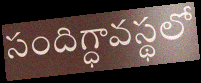
సందిగ్ధావస్థలో